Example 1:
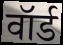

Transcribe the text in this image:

वॉर्ड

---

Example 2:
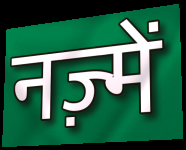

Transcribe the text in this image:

नज़्में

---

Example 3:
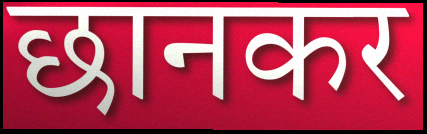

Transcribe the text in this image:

छानकर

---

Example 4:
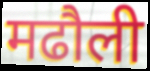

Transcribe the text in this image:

मढौली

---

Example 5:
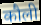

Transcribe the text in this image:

कौली